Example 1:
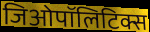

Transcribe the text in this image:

जिओपॉलिटिक्स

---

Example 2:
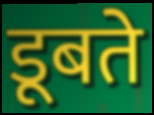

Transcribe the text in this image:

डूबते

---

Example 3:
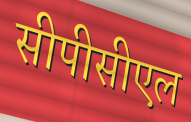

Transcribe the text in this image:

सीपीसीएल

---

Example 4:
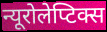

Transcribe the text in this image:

न्यूरोलेप्टिक्स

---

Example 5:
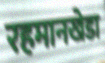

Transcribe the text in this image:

रहमानखेडा